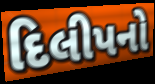
દિલીપનો